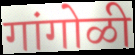
गांगोळी